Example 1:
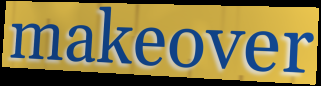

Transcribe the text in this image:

makeover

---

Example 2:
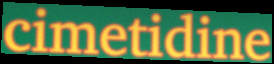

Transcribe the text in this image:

cimetidine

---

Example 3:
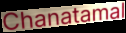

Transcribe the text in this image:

Chanatamal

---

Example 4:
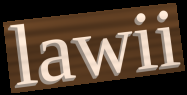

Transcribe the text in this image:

lawii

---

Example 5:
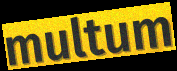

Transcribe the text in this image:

multum